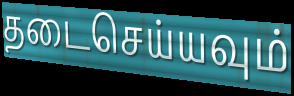
தடைசெய்யவும்